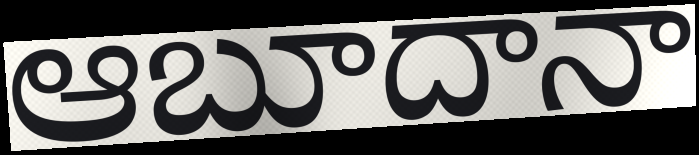
ఆబూదానా